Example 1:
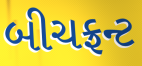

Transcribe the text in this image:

બીચફ્રન્ટ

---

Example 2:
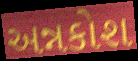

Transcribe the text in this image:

અન્નકોશ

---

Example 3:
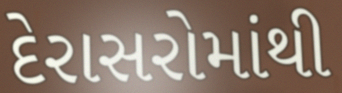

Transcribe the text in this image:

દેરાસરોમાંથી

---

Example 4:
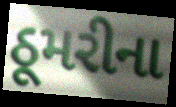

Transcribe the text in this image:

ઠૂમરીના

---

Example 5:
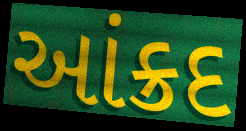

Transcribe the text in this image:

આંક્રદ